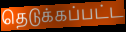
தெடுக்கப்பட்ட